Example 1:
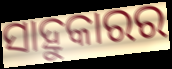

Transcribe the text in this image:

ସାହୁକାରର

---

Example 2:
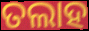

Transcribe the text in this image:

ତଲାହ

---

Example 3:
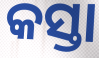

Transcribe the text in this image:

କସ୍ତା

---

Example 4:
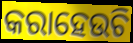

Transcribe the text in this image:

କରାହେଉଚି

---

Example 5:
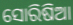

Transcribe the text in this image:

ସୋରିଷିଆ